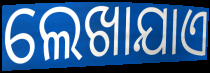
ଲେଖାଯାଏ